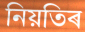
নিয়তিৰ